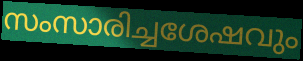
സംസാരിച്ചശേഷവും